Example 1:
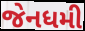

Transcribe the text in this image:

જેનધમી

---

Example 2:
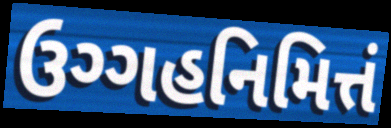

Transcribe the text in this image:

ઉગ્ગહનિમિત્તં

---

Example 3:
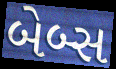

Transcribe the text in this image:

બેબ્સ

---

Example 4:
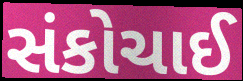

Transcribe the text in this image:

સંકોચાઈ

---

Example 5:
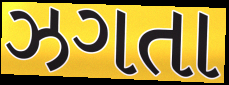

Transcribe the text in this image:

ઝગતા